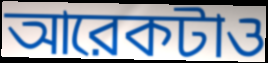
আরেকটাও